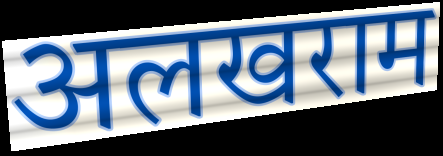
अलखराम